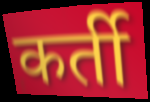
कर्ती